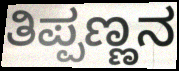
ತಿಪ್ಪಣ್ಣನ